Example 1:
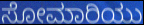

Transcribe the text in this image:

ಸೋಮಾರಿಯು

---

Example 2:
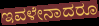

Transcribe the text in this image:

ಇವಳೇನಾದರೂ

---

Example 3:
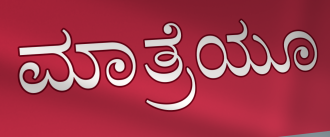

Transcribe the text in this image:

ಮಾತ್ರೆಯೂ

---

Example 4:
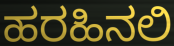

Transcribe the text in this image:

ಹರಹಿನಲಿ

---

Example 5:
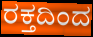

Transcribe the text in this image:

ರಕ್ತದಿಂದ